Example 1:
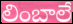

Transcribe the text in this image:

లింబాలే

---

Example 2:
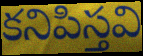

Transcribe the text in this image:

కనిపిస్తవి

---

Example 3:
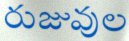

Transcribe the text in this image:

రుజువుల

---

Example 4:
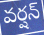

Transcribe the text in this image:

వర్షన్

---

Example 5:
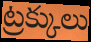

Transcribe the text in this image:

ట్రక్కులు